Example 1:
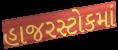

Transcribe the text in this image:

હાજરસ્ટોકમાં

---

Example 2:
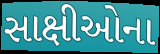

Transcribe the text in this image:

સાક્ષીઓના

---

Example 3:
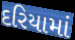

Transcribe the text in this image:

દરિયામાં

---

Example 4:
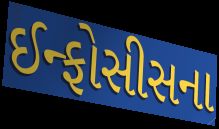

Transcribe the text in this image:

ઈન્ફોસીસના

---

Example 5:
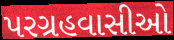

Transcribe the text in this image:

પરગ્રહવાસીઓ